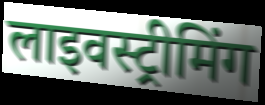
लाइवस्ट्रीमिंग